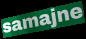
samajne